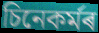
চিনেকৰ্মৰ